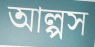
আল্পস